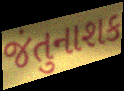
જંતુનાશક